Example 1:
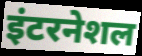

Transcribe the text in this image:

इंटरनेशल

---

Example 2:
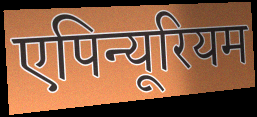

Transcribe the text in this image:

एपिन्यूरियम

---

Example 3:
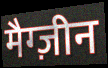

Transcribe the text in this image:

मैग्ज़ीन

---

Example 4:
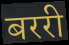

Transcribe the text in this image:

बररी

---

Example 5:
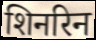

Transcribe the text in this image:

शिनरिन